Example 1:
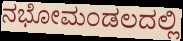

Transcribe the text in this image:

ನಭೋಮಂಡಲದಲ್ಲಿ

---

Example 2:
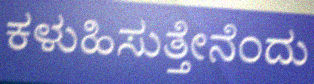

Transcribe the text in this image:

ಕಳುಹಿಸುತ್ತೇನೆಂದು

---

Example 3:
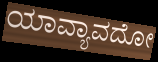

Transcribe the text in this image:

ಯಾವ್ಯಾವದೋ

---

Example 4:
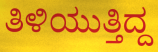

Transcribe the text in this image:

ತಿಳಿಯುತ್ತಿದ್ದ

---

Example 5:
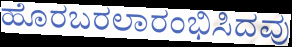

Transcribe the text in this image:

ಹೊರಬರಲಾರಂಭಿಸಿದವು